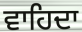
ਵਾਹਿਦਾ